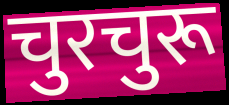
चुरचुरू